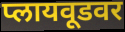
प्लायवूडवर